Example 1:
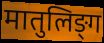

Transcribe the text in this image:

मातुलिङ्ग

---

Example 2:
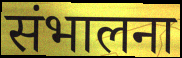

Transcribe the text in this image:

संभालना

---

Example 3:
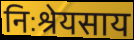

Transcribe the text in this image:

निःश्रेयसाय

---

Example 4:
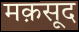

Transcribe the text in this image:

मक़सूद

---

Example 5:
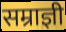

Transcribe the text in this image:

सम्राज्ञी